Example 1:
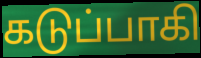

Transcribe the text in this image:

கடுப்பாகி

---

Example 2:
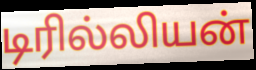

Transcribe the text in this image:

டிரில்லியன்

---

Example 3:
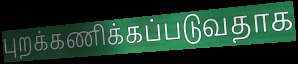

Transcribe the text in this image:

புறக்கணிக்கப்படுவதாக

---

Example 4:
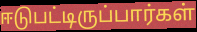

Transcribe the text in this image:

ஈடுபட்டிருப்பார்கள்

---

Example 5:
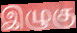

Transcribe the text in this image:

இழுகு